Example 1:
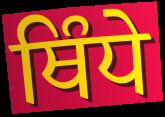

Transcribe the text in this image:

ਥਿੰਧੇ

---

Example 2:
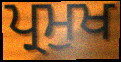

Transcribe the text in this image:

ਪ੍ਰਮੁਖ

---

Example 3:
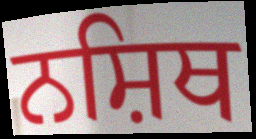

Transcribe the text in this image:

ਨਸ਼ਿਥ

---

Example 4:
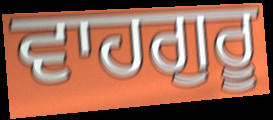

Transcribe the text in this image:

ਵਾਹਗੁਰੂ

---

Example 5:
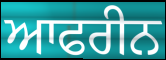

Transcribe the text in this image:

ਆਫਰੀਨ